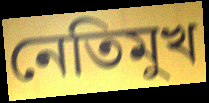
নেতিমুখ